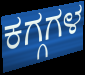
ಕಗ್ಗಗಳ